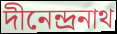
দীনেন্দ্রনাথ